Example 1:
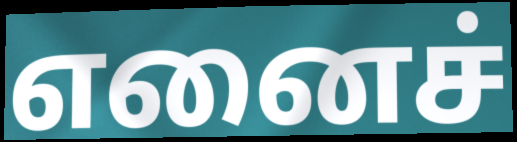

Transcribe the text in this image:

எனைச்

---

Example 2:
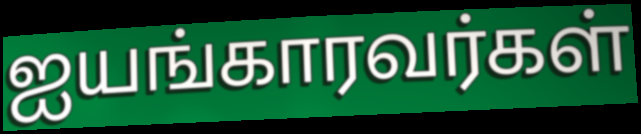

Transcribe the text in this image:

ஐயங்காரவர்கள்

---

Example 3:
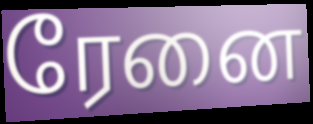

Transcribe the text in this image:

ரேனை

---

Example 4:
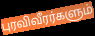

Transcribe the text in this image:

புரவிவீரர்களும்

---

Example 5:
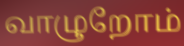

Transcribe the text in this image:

வாழுறோம்